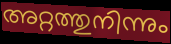
അറ്റത്തുനിന്നും